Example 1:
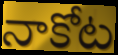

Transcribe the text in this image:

నాకోట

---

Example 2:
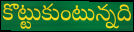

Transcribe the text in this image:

కొట్టుకుంటున్నది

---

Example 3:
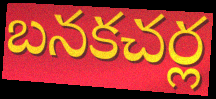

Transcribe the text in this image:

బనకచర్ల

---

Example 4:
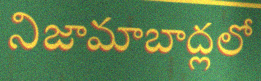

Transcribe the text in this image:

నిజామాబాద్లలో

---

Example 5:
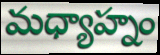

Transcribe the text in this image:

మధ్యాహ్నం